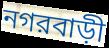
নগরবাড়ী